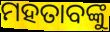
ମହତାବଙ୍କୁ